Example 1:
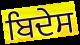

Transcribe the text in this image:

ਬਿਦੇਸ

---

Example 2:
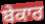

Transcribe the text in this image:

ਬੇਕਾਰ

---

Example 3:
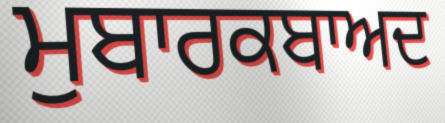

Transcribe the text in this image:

ਮੁਬਾਰਕਬਾਅਦ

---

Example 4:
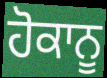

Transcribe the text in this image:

ਹੋਕਾਨੂ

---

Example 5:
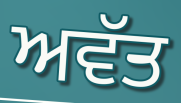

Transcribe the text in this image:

ਅਵੱਤ